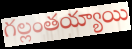
గల్లంతయ్యాయి